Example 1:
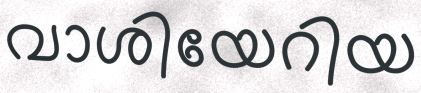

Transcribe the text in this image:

വാശിയേറിയ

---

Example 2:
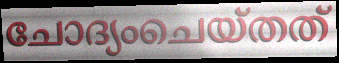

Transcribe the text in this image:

ചോദ്യംചെയ്തത്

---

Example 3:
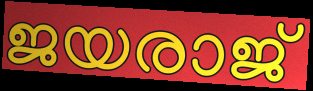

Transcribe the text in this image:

ജയരാജ്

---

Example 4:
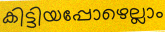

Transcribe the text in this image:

കിട്ടിയപ്പോഴെല്ലാം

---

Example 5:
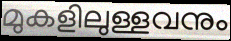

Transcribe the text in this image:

മുകളിലുള്ളവനും